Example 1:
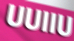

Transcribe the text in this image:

UUIIU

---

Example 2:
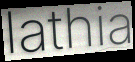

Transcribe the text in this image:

lathia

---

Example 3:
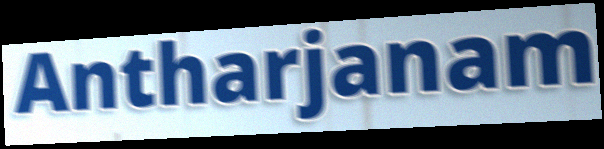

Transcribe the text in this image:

Antharjanam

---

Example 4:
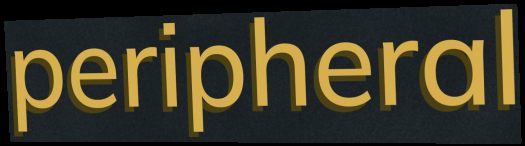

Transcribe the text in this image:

peripheral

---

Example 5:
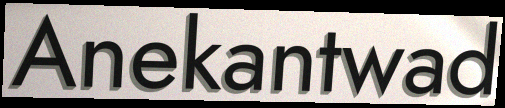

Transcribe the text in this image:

Anekantwad